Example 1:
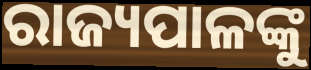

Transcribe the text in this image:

ରାଜ୍ୟପାଳଙ୍କୁ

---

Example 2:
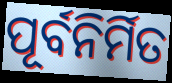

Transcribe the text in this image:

ପୂର୍ବନିର୍ମିତ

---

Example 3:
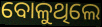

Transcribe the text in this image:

ବୋଳୁଥିଲେ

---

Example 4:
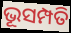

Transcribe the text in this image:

ଭୂସମ୍ପତି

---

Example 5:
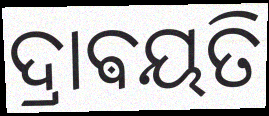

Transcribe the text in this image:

ଦ୍ରାଵୟତି